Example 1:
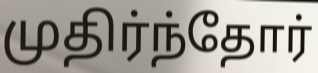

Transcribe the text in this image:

முதிர்ந்தோர்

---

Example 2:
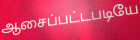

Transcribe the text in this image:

ஆசைப்பட்டபடியே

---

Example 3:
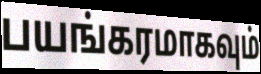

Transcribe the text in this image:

பயங்கரமாகவும்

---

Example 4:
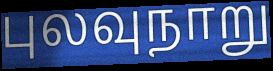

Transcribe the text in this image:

புலவுநாறு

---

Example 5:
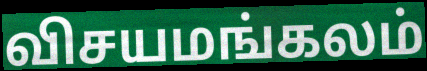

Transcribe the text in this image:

விசயமங்கலம்